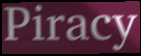
Piracy